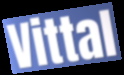
Vittal